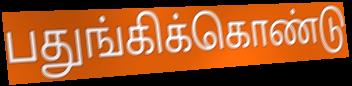
பதுங்கிக்கொண்டு